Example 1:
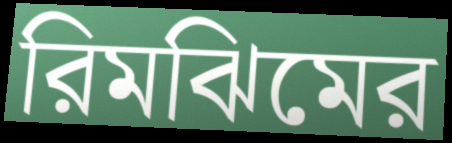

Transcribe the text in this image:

রিমঝিমের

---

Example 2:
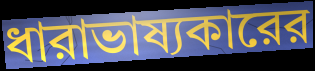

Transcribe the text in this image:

ধারাভাষ্যকারের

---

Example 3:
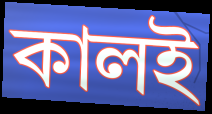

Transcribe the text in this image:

কালই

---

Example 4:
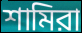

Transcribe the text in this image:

শামিরা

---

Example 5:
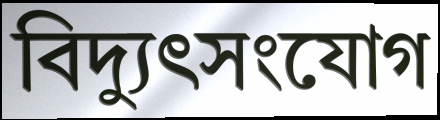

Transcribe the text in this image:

বিদ্যুৎসংযোগ